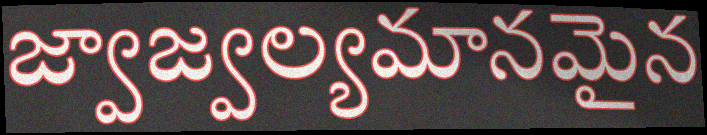
జ్వాజ్వల్యమానమైన